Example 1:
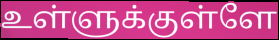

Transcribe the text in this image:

உள்ளுக்குள்ளே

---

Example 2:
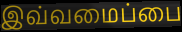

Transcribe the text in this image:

இவ்வமைப்பை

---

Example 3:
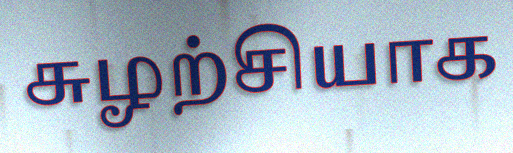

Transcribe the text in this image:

சுழற்சியாக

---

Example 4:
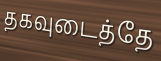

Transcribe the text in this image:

தகவுடைத்தே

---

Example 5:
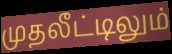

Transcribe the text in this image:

முதலீட்டிலும்